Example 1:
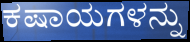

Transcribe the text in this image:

ಕಷಾಯಗಳನ್ನು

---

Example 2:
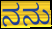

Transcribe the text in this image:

ನನು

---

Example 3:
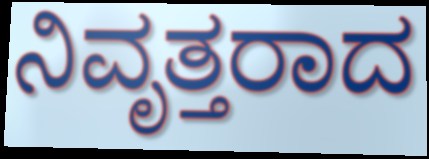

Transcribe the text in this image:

ನಿವೃತ್ತರಾದ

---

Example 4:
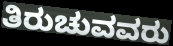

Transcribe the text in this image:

ತಿರುಚುವವರು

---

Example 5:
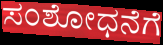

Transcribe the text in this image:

ಸಂಶೋಧನೆಗೆ